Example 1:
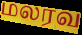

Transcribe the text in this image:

மலரவ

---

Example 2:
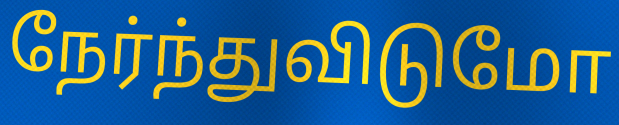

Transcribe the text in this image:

நேர்ந்துவிடுமோ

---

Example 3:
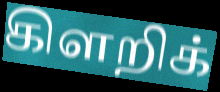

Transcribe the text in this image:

கிளறிக்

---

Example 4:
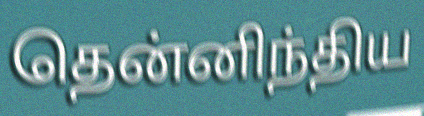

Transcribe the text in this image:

தென்னிந்திய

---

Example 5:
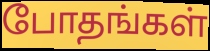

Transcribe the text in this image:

போதங்கள்